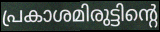
പ്രകാശമിരുട്ടിന്റെ